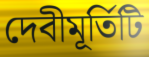
দেবীমূর্তিটি